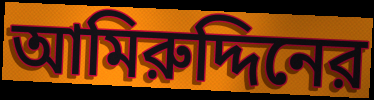
আমিরুদ্দিনের